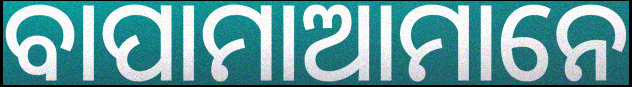
ବାପାମାଆମାନେ